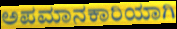
ಅಪಮಾನಕಾರಿಯಾಗಿ